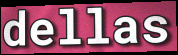
dellas